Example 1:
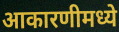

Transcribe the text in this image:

आकारणीमध्ये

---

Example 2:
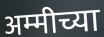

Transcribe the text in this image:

अम्मीच्या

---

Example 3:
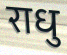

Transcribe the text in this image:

राधु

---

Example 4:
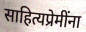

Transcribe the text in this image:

साहित्यप्रेमींना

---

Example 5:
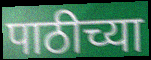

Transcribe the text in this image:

पाठीच्या